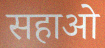
सहाओ